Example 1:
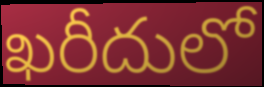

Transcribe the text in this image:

ఖరీదులో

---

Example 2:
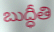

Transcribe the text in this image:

బుద్ధీతి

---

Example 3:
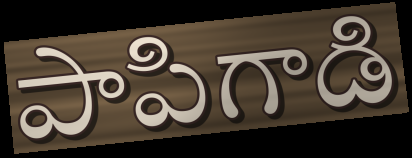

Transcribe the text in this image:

పాపిగాడి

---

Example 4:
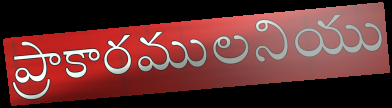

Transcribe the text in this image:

ప్రాకారములనియు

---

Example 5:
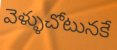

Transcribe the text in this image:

వెళ్ళుచోటునకే